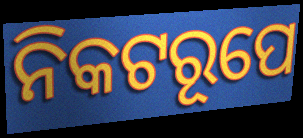
ନିକଟରୂପେ